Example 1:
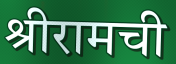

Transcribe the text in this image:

श्रीरामची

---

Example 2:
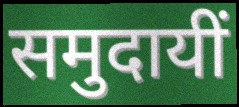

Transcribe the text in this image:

समुदायीं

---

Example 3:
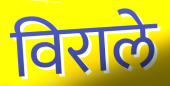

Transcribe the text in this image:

विराले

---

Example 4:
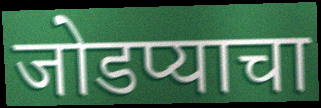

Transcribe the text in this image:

जोडप्याचा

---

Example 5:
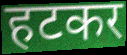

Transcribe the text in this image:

हटकर